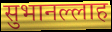
सुभानल्लाह